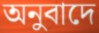
অনুবাদে